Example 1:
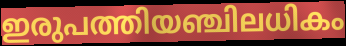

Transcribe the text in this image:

ഇരുപത്തിയഞ്ചിലധികം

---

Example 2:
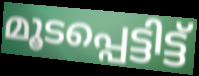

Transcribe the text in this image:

മൂടപ്പെട്ടിട്ട്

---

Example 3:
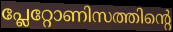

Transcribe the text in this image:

പ്ലേറ്റോണിസത്തിന്റെ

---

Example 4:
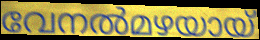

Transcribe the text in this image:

വേനൽമഴയായ്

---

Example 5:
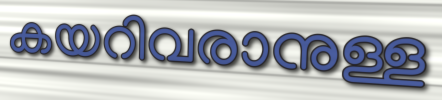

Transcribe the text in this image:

കയറിവരാനുള്ള